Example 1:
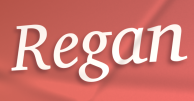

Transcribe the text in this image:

Regan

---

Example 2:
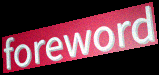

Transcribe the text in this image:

foreword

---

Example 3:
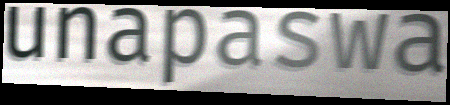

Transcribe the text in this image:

unapaswa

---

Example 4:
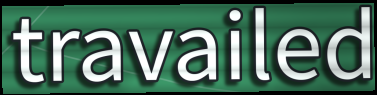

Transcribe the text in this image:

travailed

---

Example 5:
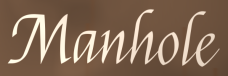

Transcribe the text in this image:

Manhole